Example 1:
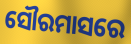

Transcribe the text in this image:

ସୌରମାସରେ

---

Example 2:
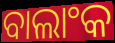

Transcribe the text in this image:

ବାଲାଂକ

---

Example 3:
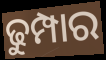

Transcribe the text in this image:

ଢୁମ୍ପାର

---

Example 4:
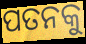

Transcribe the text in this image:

ପତନକୁ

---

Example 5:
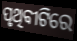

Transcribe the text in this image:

ପୃଥିବୀଟିରେ